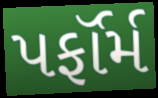
પર્ફૉર્મ